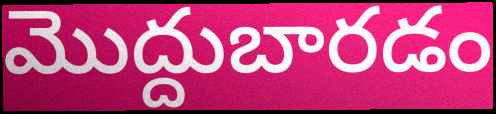
మొద్దుబారడం